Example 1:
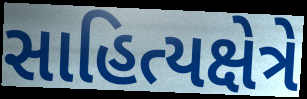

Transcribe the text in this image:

સાહિત્યક્ષેત્રે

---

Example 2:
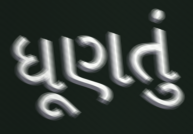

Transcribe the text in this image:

ધૂણતું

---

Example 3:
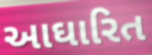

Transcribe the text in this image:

આઘારિત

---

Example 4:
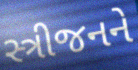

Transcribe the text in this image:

સ્ત્રીજનને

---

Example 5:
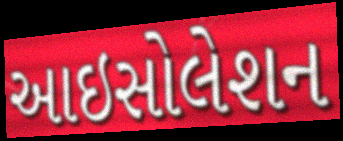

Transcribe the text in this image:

આઇસોલેશન